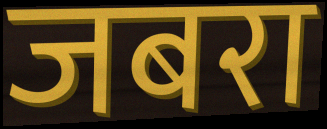
जबरा